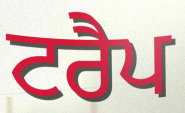
ਟਰੈਪ